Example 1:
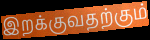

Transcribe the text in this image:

இறக்குவதற்கும்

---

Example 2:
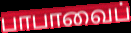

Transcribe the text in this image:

பாபாவைப்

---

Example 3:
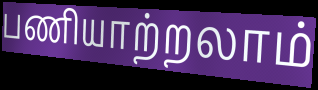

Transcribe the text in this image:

பணியாற்றலாம்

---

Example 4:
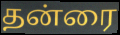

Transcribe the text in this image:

தன்ரை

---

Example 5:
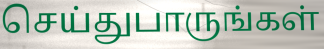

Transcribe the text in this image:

செய்துபாருங்கள்